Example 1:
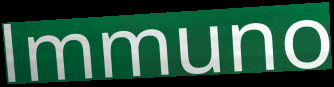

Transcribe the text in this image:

Immuno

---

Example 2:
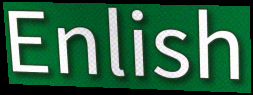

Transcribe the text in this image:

Enlish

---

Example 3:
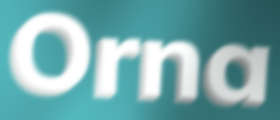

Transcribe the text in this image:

Orna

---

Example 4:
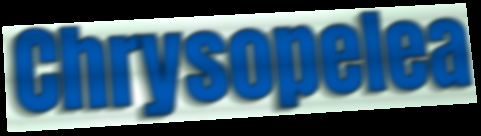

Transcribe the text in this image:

Chrysopelea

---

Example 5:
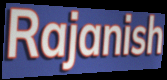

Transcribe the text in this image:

Rajanish